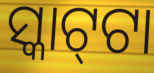
ସ୍କାଟ୍‌ଟା